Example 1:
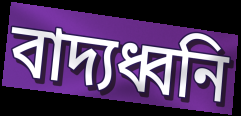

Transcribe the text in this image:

বাদ্যধ্বনি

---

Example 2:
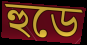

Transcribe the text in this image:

হুডে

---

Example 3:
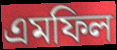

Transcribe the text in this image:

এমফিল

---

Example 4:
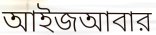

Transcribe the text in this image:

আইজআবার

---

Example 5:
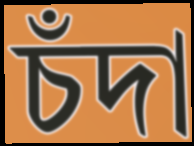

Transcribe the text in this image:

চঁদা